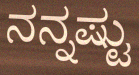
ನನ್ನಷ್ಟು